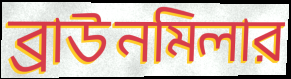
ব্রাউনমিলার